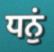
ਧਨੁਂ